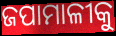
ଜପାମାଳୀକୁ